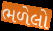
ભળેલો